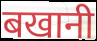
बखानी